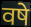
वषे